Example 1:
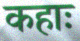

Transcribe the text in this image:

कहाः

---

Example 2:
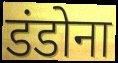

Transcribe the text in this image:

डंडोना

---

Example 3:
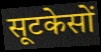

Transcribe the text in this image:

सूटकेसों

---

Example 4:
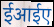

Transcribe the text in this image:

ईआईए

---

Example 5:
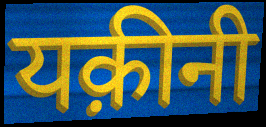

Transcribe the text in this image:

यक़ीनी